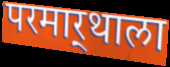
परमार्थाला